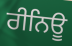
ਰੀਨਿਊ